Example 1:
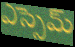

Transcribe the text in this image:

ఎస్సెమ్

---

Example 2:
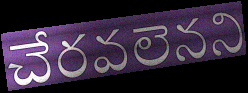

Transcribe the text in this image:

చేరవలెనని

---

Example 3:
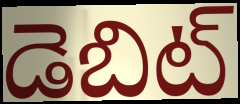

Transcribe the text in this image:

డెబిట్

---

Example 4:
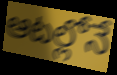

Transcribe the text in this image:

ఆటల్లోనే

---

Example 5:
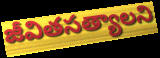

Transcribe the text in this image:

జీవితసత్యాలని